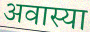
अवास्या